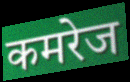
कमरेज